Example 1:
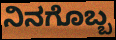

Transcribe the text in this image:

ನಿನಗೊಬ್ಬ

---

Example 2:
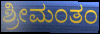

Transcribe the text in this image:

ಶ್ರೀಮಂತಂ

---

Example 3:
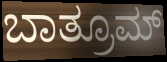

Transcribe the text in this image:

ಬಾತ್ರೂಮ್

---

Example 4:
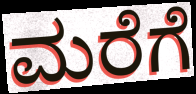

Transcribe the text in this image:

ಮರೆಗೆ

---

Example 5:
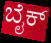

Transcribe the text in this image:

ಬೈಕ್